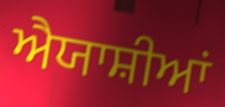
ਐਯਾਸ਼ੀਆਂ